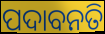
ପଦାବନତି